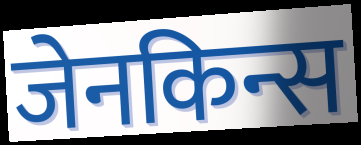
जेनकिन्स